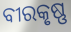
ବୀରକୃଷ୍ଣ